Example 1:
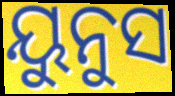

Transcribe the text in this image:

ୟୁନୁସ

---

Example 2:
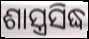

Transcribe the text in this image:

ଶାସ୍ତ୍ରସିଦ୍ଧ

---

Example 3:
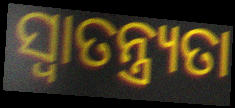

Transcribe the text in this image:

ସ୍ୱାତନ୍ତ୍ର୍ୟତା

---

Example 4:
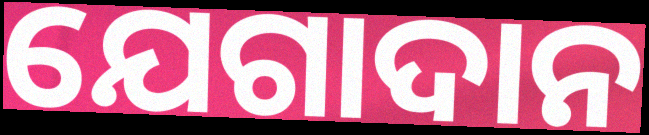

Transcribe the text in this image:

ଯେଗାଦାନ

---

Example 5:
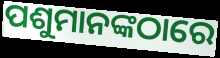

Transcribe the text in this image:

ପଶୁମାନଙ୍କଠାରେ